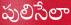
పులిసేలా